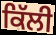
ਕਿੱਲੀ